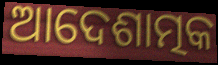
ଆଦେଶାତ୍ମକ